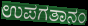
ಉಪಗತಾನಂ